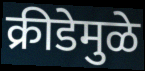
क्रीडेमुळे